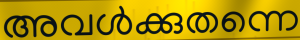
അവൾക്കുതന്നെ